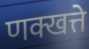
णक्खत्ते